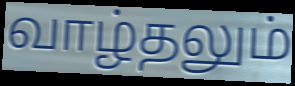
வாழ்தலும்